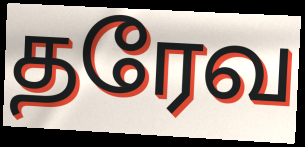
தரேவ